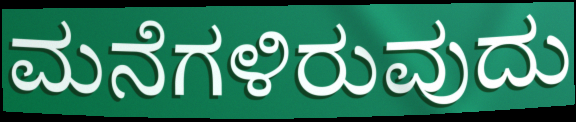
ಮನೆಗಳಿರುವುದು